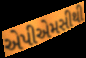
એપીએમસીથી